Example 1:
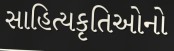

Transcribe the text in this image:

સાહિત્યકૃતિઓનો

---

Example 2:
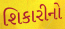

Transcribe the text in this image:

શિકારીનો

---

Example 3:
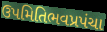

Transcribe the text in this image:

ઉપમિતિભવપ્રપંચા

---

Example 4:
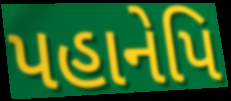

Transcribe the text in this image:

પહાનેપિ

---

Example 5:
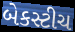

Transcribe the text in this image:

બેકસ્ટીચ